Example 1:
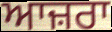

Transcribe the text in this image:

ਆਜ਼ਰਾ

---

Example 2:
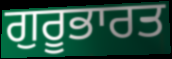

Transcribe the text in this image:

ਗੁਰੂਭਾਰਤ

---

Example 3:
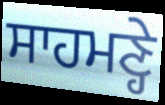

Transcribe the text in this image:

ਸਾਹਮਣ੍ਹੇ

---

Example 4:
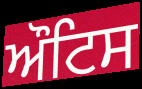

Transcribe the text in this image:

ਔਟਿਸ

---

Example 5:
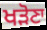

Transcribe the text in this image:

ਖੜੋਣਾ